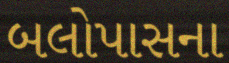
બલોપાસના